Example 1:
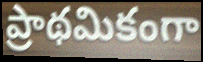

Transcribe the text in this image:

ప్రాథమికంగా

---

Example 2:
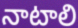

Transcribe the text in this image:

నాటాలి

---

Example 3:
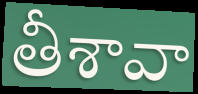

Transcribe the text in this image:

తీశావా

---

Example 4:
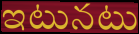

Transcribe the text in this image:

ఇటునటు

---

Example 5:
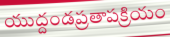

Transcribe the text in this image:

యుద్దండప్రతాపక్రియం